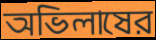
অভিলাষের